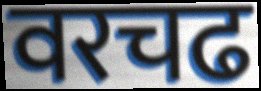
वरचढ